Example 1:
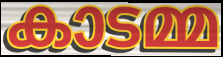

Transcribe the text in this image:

കാടമ്മ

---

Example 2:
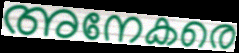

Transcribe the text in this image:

അനേകരെ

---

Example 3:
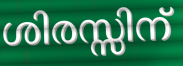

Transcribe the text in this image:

ശിരസ്സിന്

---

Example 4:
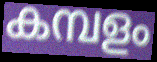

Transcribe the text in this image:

കമ്പളം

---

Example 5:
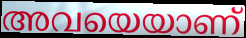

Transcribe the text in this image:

അവയെയാണ്